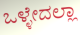
ಒಳ್ಳೇದಲ್ಲಾ